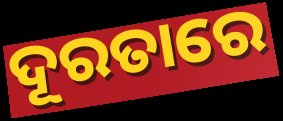
ଦୂରତାରେ